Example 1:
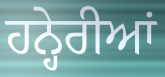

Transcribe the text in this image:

ਹਨ੍ਹੇਰੀਆਂ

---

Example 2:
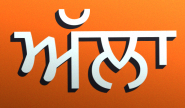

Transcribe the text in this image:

ਅੱਲਾ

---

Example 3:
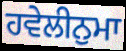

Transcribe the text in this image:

ਹਵੇਲੀਨੁਮਾ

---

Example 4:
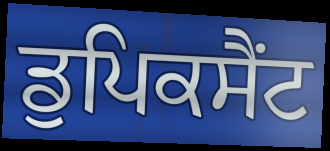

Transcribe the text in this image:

ਡੁਪਿਕਸੈਂਟ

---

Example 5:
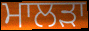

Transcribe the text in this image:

ਮਾਲੜਾ